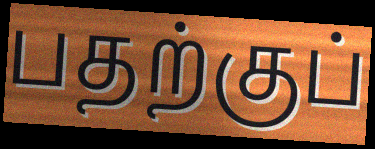
பதற்குப்